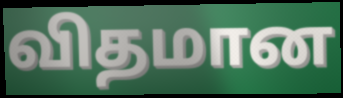
விதமான